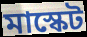
মাস্কেট